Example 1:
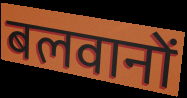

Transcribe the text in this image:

बलवानों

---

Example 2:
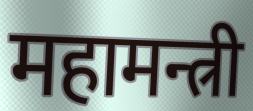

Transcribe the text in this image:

महामन्त्री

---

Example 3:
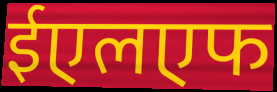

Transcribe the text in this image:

ईएलएफ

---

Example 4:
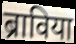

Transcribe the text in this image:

ब्राविया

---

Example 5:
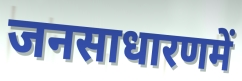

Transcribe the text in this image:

जनसाधारणमें